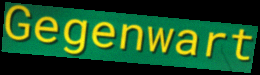
Gegenwart